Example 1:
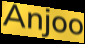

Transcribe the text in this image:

Anjoo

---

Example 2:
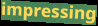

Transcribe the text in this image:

impressing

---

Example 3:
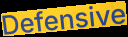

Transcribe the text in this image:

Defensive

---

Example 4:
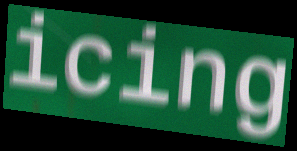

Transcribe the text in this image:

icing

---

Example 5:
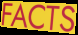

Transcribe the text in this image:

FACTS